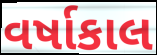
વર્ષાકાલ